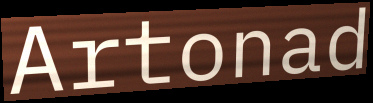
Artonad